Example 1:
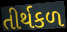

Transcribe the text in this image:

તીર્થકળ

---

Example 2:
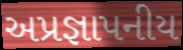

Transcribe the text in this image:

અપ્રજ્ઞાપનીય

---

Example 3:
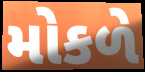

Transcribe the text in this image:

મોકળે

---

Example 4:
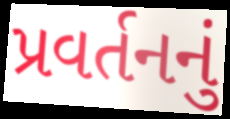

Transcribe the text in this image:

પ્રવર્તનનું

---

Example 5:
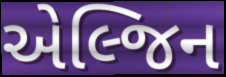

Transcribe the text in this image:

એલ્જિન